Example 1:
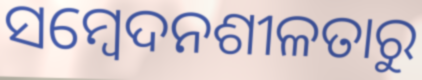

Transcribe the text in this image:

ସମ୍ବେଦନଶୀଳତାରୁ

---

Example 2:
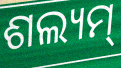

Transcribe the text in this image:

ଶଲ୍ୟମ୍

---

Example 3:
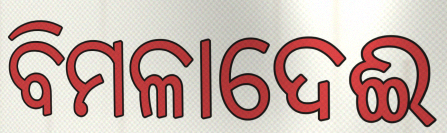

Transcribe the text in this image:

ବିମଳାଦେଈ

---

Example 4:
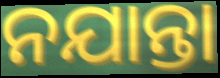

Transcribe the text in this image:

ନଯାନ୍ତା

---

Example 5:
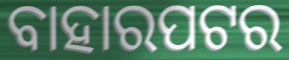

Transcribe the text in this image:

ବାହାରପଟର